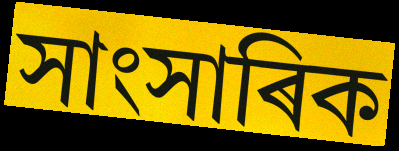
সাংসাৰিক